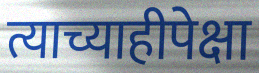
त्याच्याहीपेक्षा